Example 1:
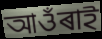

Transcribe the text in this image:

আওঁৰাই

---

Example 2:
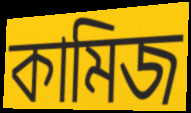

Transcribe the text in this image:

কামিজ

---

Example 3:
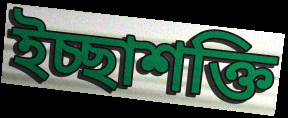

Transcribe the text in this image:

ইচ্ছাশক্তি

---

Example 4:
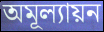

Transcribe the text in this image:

অমূল্যায়ন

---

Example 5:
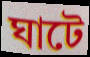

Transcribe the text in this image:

ঘাটে